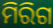
ମିରିଗ